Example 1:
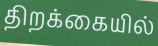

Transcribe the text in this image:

திறக்கையில்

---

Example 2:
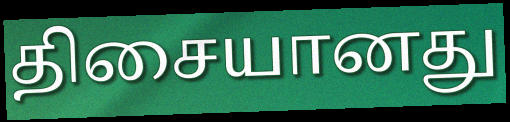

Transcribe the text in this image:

திசையானது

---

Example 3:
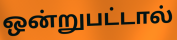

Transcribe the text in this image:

ஒன்றுபட்டால்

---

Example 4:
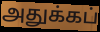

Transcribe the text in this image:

அதுக்கப்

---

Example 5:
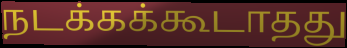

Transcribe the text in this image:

நடக்கக்கூடாதது